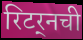
रिटर्नची